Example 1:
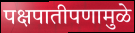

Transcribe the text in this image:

पक्षपातीपणामुळे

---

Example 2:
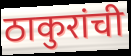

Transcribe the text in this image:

ठाकुरांची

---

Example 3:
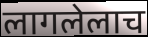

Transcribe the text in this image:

लागलेलाच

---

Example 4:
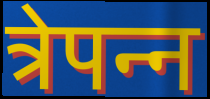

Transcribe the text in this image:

त्रेपन्न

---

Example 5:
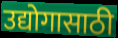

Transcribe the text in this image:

उद्योगासाठी